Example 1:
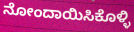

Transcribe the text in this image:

ನೋಂದಾಯಿಸಿಕೊಳ್ಳಿ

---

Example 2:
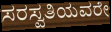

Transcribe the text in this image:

ಸರಸ್ವತಿಯವರೇ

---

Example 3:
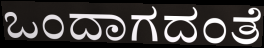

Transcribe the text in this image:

ಒಂದಾಗದಂತೆ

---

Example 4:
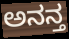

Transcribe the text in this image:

ಅನನ್ತ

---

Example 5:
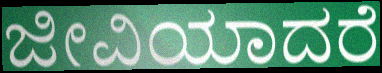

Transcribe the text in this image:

ಜೀವಿಯಾದರೆ